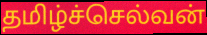
தமிழ்ச்செல்வன்